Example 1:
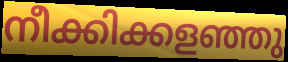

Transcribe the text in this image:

നീക്കിക്കളഞ്ഞു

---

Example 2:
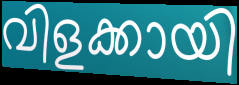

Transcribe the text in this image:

വിളക്കായി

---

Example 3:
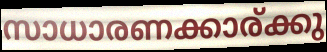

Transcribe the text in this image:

സാധാരണക്കാര്ക്കു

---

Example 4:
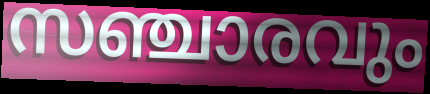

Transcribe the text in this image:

സഞ്ചാരവും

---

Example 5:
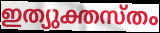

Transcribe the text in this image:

ഇത്യുക്തസ്തം